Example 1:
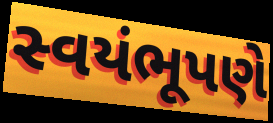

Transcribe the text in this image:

સ્વયંભૂપણે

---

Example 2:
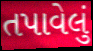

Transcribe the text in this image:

તપાવેલું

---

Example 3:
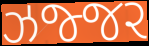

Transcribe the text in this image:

ઝજ્જર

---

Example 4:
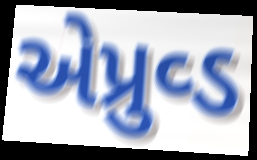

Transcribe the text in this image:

એપ્રુવ્ડ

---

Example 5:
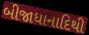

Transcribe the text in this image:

બીજાધાનાદિથી